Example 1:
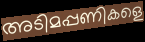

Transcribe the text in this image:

അടിമപ്പണികളെ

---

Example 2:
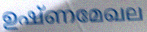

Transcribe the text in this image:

ഉഷ്ണമേഖല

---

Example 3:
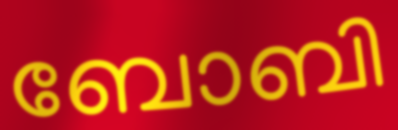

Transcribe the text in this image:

ബോബി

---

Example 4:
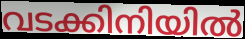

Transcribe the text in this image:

വടക്കിനിയിൽ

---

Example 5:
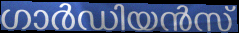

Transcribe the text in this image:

ഗാർഡിയൻസ്